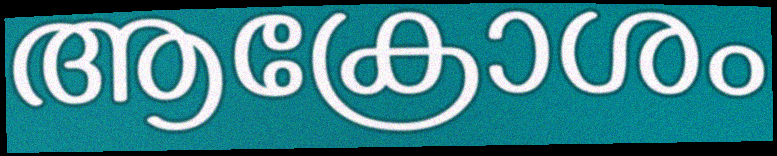
ആക്രോശം